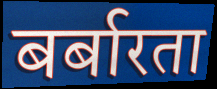
बर्बारता